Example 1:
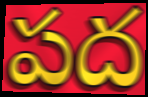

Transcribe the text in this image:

పద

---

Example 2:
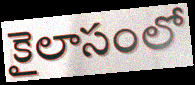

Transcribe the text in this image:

కైలాసంలో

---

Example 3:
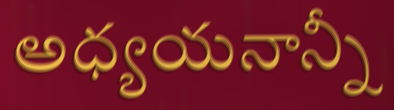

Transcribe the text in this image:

అధ్యయనాన్నీ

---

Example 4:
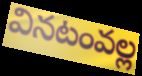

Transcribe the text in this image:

వినటంవల్ల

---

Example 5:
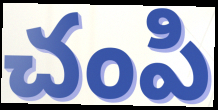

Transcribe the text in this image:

చంపి